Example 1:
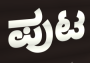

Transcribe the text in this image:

ಪುಟ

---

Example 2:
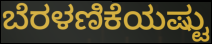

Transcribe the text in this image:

ಬೆರಳಣಿಕೆಯಷ್ಟು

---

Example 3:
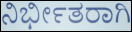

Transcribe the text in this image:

ನಿರ್ಭೀತರಾಗಿ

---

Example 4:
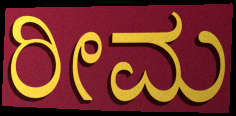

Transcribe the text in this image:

ರೀಮ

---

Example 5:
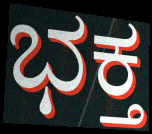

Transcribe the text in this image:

ಭಕ್ತ